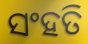
ସଂହତି